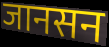
जानसन